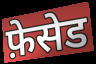
फ़ेसेड